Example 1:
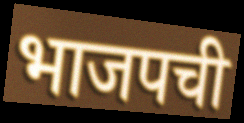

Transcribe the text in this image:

भाजपची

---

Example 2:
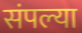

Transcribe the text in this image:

संपल्या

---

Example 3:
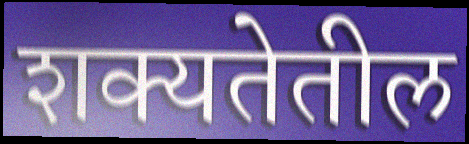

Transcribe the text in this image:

शक्यतेतील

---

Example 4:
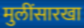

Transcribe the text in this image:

मुलींसारखा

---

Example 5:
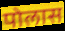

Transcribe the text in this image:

पोलास